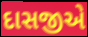
દાસજીએ